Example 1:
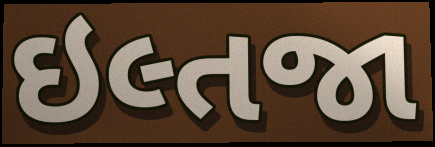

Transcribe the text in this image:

ઇલ્તજા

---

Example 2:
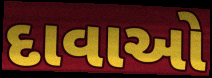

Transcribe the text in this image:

દાવાઓ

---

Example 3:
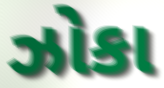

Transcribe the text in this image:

ઝોકા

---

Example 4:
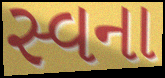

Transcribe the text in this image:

સ્વના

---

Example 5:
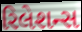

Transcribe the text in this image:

રિલેશન્સ